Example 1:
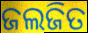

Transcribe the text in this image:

ଜଲଜିତ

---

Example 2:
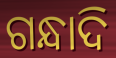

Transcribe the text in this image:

ଗନ୍ଧାଦି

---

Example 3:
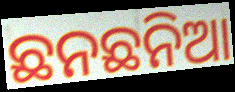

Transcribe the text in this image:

ଛନଛନିଆ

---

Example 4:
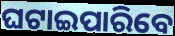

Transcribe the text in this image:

ଘଟାଇପାରିବେ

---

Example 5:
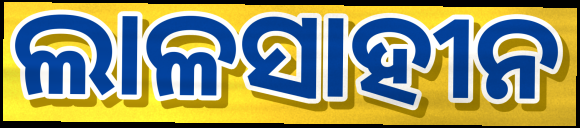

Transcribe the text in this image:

ଲାଳସାହୀନ